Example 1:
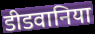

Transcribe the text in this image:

डीडवानिया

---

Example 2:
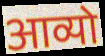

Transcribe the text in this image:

आव्यो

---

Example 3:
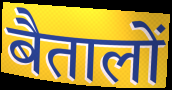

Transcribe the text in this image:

बैतालों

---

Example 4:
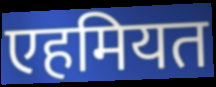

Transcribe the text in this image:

एहमियत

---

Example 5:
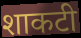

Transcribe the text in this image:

शाकटी